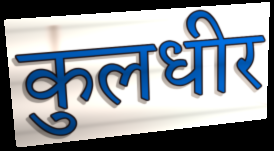
कुलधीर